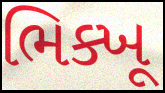
ભિક્ખૂ